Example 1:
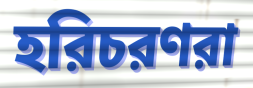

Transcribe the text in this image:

হরিচরণরা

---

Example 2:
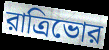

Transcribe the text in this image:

রাত্রিভোর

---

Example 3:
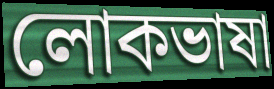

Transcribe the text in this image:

লোকভাষা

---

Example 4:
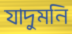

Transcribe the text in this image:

যাদুমনি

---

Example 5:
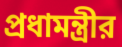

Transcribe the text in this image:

প্রধামন্ত্রীর